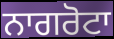
ਨਾਗਰੋਟਾ